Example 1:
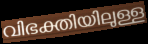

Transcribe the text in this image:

വിഭക്തിയിലുള്ള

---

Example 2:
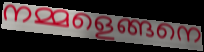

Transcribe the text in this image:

നമ്മളെങ്ങനെ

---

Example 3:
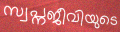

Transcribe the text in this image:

സ്വപ്നജീവിയുടെ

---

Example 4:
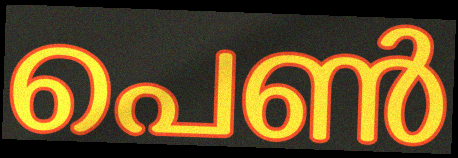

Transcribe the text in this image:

പെൺ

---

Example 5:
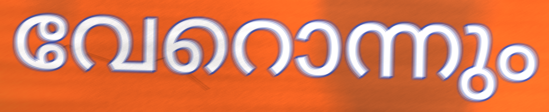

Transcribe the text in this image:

വേറൊന്നും